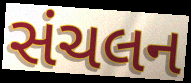
સંચલન